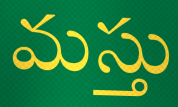
మస్తు